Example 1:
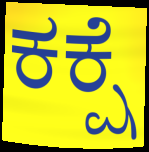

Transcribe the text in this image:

ಕಕ್ಷೆ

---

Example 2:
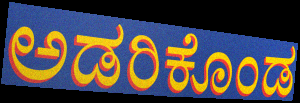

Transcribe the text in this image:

ಅಡರಿಕೊಂಡ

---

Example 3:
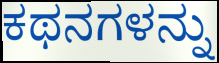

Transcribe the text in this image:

ಕಥನಗಳನ್ನು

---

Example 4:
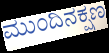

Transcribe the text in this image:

ಮುಂದಿನಕ್ಷಣ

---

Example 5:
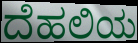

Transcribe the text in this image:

ದೆಹಲಿಯ